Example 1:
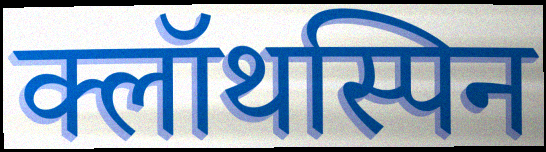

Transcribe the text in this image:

क्लॉथस्पिन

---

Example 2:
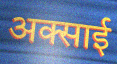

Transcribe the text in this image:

अक्साई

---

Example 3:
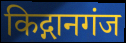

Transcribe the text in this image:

किद्गानगंज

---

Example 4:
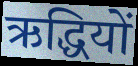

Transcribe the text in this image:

ऋद्धियों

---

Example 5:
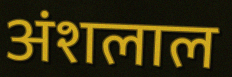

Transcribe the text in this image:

अंशलाल